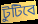
টুটিবে